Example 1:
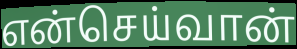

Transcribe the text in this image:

என்செய்வான்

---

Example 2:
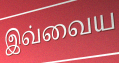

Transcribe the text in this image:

இவ்வைய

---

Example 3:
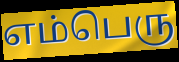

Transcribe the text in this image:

எம்பெரு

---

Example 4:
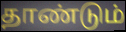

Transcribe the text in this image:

தாண்டும்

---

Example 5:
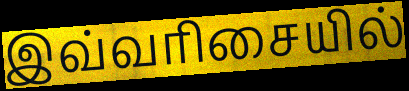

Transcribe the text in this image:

இவ்வரிசையில்